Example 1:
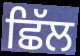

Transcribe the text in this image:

ਛਿੱਲ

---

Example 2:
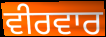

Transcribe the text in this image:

ਵੀਰਵਾਰ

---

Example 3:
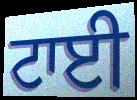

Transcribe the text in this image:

ਟਾਈ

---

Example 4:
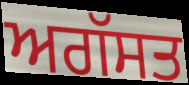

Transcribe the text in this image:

ਅਗੱਸਤ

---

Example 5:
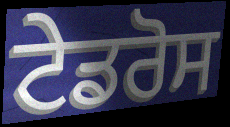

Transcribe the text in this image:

ਟੇਡਰੋਸ